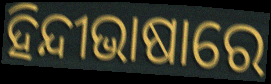
ହିନ୍ଦୀଭାଷାରେ